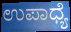
ಉಪಾಧ್ಯೆ